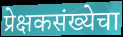
प्रेक्षकसंख्येचा